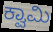
ಕ್ವಾಮಿ